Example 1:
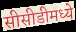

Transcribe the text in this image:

सीसीडीमध्ये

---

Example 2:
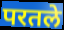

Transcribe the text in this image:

परतले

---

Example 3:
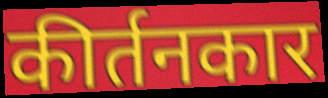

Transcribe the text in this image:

कीर्तनकार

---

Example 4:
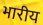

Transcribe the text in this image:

भारीय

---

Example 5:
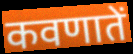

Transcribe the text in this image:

कवणातें